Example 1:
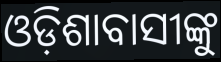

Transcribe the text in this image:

ଓଡ଼ିଶାବାସୀଙ୍କୁ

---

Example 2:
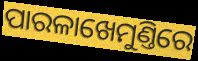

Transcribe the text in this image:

ପାରଳାଖେମୁଣ୍ତିରେ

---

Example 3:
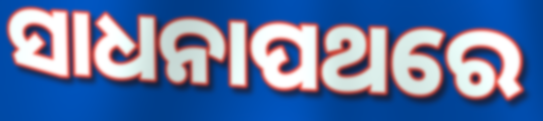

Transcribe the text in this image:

ସାଧନାପଥରେ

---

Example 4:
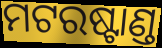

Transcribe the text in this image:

ମଟରଷ୍ଟାଣ୍ଡ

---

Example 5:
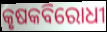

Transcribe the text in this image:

କୃଷକବିରୋଧୀ